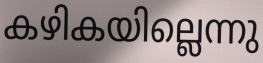
കഴികയില്ലെന്നു